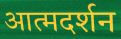
आत्मदर्शन